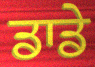
ਡਾਡੇ